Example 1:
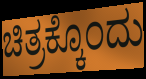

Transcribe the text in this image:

ಚಿತ್ರಕ್ಕೊಂದು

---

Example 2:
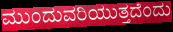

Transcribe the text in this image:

ಮುಂದುವರಿಯುತ್ತದೆಂದು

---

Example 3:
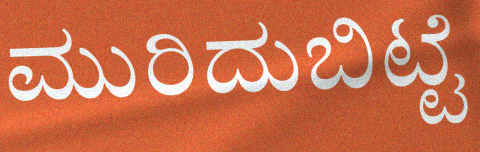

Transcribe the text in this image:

ಮುರಿದುಬಿಟ್ಟೆ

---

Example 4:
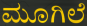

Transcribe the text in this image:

ಮೂಗಿಲೆ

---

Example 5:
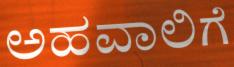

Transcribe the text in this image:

ಅಹವಾಲಿಗೆ